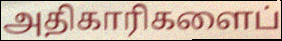
அதிகாரிகளைப்